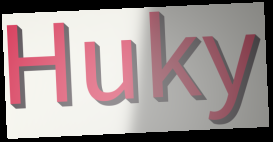
Huky